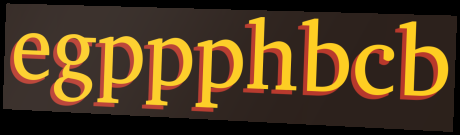
egppphbcb